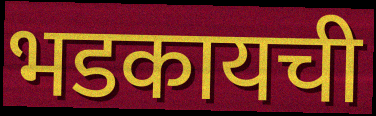
भडकायची